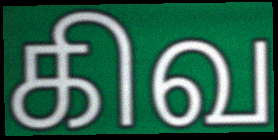
கிவ